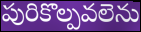
పురికొల్పవలెను